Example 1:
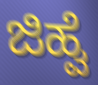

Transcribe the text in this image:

ಜಿಹ್ವೆ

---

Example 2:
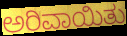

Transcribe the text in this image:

ಅರಿವಾಯಿತು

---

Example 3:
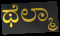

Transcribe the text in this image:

ಥೆಲ್ಮಾ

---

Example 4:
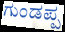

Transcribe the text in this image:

ಗುಂಡಪ್ಪ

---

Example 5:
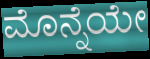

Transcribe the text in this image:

ಮೊನ್ನೆಯೇ